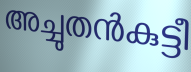
അച്ചുതൻകുട്ടീ